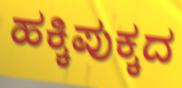
ಹಕ್ಕಿಪುಕ್ಕದ